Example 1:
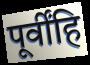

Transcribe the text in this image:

पूर्वींहि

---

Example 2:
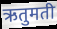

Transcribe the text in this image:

ऋतुमती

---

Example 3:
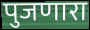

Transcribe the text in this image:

पुजणारा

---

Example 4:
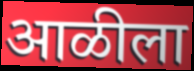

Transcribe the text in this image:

आळीला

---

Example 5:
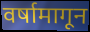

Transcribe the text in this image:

वर्षामागून